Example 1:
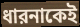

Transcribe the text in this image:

ধারনাকেই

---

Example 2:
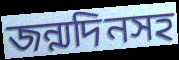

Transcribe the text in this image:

জন্মদিনসহ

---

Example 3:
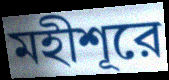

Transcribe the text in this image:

মহীশূরে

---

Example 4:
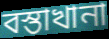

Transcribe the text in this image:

বস্তাখানা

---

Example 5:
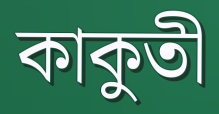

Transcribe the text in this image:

কাকুতী